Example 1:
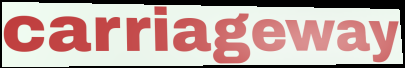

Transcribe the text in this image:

carriageway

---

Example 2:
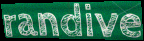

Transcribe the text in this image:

randive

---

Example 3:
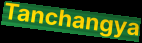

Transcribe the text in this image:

Tanchangya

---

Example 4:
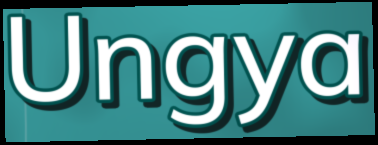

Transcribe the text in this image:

Ungya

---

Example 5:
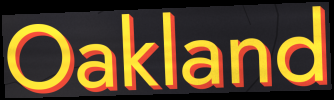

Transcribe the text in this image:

Oakland